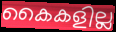
കൈകളില്ല